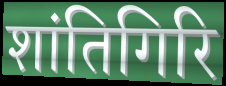
शांतिगिरि